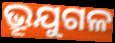
ଭ୍ରୂଯୁଗଳ